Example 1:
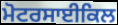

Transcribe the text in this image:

ਮੋਟਰਸਾਈਕਿਲ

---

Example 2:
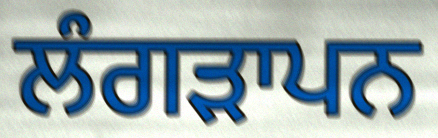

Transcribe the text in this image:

ਲੰਗੜਾਪਨ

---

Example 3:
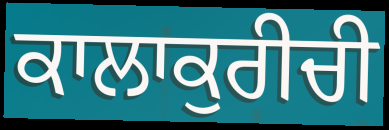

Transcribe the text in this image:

ਕਾਲਾਕੁਰੀਚੀ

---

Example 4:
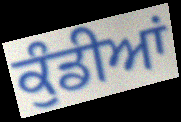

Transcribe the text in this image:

ਕੁੰਡੀਆਂ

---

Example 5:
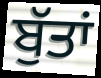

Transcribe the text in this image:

ਬੁੱਤਾਂ